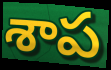
శాప